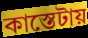
কাস্তেটায়